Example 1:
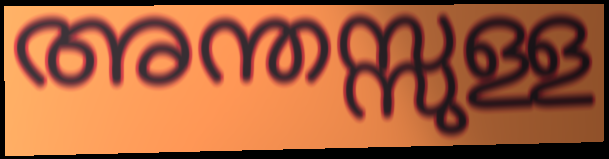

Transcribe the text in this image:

അന്തസ്സുള്ള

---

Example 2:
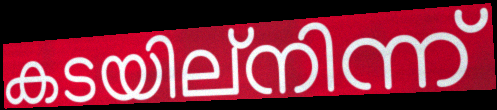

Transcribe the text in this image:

കടയില്നിന്ന്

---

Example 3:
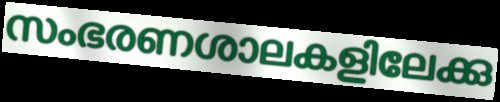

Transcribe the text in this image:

സംഭരണശാലകളിലേക്കു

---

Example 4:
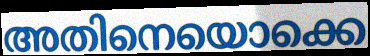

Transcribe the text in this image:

അതിനെയൊക്കെ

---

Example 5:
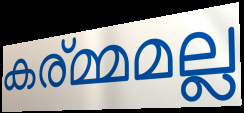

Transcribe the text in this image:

കര്മ്മമല്ല